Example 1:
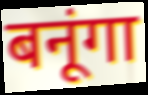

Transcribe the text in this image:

बनूंगा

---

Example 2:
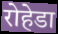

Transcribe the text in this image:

रोहेडा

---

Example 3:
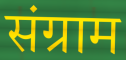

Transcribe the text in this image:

संग्राम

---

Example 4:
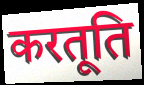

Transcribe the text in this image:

करतूति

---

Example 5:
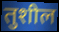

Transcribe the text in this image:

तुशील